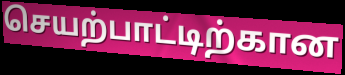
செயற்பாட்டிற்கான